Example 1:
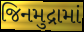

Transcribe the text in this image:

જિનમુદ્રામાં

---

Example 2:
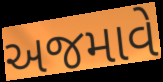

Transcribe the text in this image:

અજમાવે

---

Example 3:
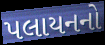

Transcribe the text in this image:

પલાયનનો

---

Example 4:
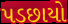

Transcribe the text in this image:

પડછાયો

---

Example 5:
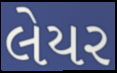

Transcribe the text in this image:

લેયર